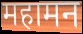
महामन